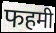
फहमी